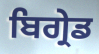
ਬਿਗ੍ਰੇਡ